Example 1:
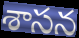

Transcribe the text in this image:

శాసన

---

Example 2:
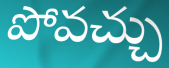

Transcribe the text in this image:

పోవచ్చు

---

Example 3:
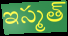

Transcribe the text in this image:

ఇస్మత్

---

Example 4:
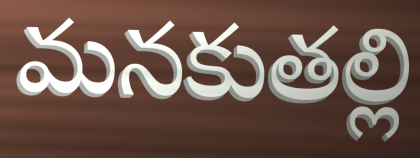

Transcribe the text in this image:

మనకుతల్లి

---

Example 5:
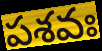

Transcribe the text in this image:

పశవః